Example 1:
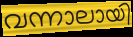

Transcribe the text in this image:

വന്നാലായി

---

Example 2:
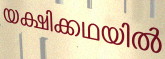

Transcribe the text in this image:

യക്ഷിക്കഥയിൽ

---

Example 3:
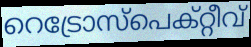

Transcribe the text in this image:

റെട്രോസ്പെക്റ്റീവ്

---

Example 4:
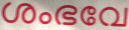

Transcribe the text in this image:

ശംഭവേ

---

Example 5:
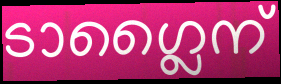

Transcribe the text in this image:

ടാഗ്ലൈന്